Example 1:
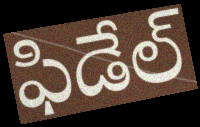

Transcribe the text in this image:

ఫిడేల్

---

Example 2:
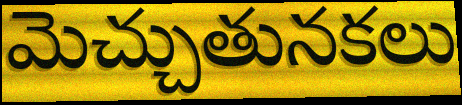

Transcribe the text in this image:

మెచ్చుతునకలు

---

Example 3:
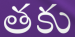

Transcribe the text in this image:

తకు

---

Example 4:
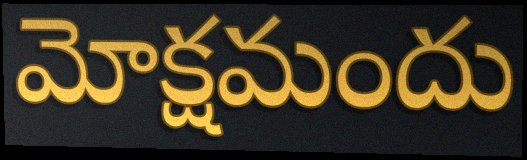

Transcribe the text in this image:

మోక్షమందు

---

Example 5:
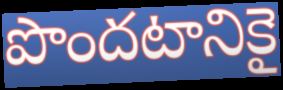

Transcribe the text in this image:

పొందటానికై